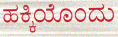
ಹಕ್ಕಿಯೊಂದು